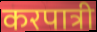
करपात्री